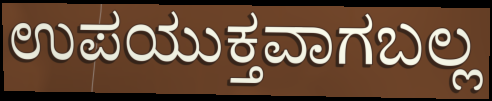
ಉಪಯುಕ್ತವಾಗಬಲ್ಲ